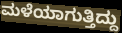
ಮಳೆಯಾಗುತ್ತಿದ್ದು